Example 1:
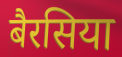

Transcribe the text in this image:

बैरसिया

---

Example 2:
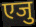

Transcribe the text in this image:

एजु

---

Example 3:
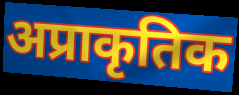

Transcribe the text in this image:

अप्राकृतिक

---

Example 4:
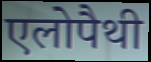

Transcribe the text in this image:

एलोपैथी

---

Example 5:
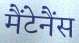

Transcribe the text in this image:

मैंटेनैंस